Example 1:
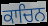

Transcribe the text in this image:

ਕਾਚਿਨ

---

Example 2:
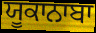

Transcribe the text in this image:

ਯੂਕਾਨਾਬਾ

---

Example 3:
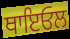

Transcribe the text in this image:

ਥਾਇਓਲ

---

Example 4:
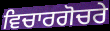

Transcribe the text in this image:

ਵਿਚਾਰਗੋਚਰੇ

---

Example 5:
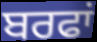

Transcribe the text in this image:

ਬਰਫਾਂ